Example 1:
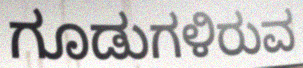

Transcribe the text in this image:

ಗೂಡುಗಳಿರುವ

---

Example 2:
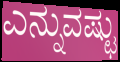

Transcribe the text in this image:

ಎನ್ನುವಷ್ಟು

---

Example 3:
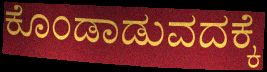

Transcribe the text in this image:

ಕೊಂಡಾಡುವದಕ್ಕೆ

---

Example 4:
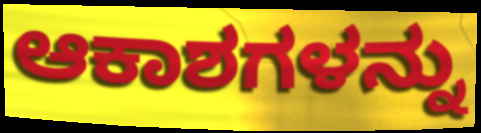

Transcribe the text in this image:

ಆಕಾಶಗಳನ್ನು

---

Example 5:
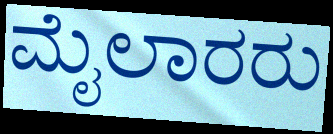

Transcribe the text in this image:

ಮೈಲಾರರು